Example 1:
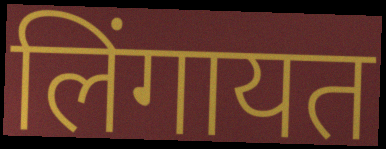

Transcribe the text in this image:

लिंगायत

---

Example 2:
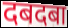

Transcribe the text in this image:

दबदबा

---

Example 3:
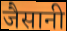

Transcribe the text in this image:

जैसानी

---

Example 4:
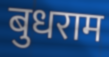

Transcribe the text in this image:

बुधराम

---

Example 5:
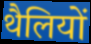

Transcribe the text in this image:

थैलियों